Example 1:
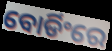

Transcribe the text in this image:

ବୋର୍ଡିଂରେ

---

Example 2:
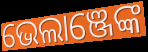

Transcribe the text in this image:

ଭେଲାଞ୍ଜେଙ୍କ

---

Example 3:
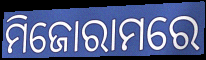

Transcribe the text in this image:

ମିଜୋରାମରେ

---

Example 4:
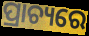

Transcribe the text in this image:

ପ୍ରାଚ୍ୟରେ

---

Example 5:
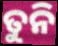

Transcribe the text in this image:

ତୁନି